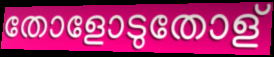
തോളോടുതോള്